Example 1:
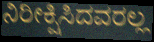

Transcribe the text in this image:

ನಿರೀಕ್ಷಿಸಿದವರಲ್ಲ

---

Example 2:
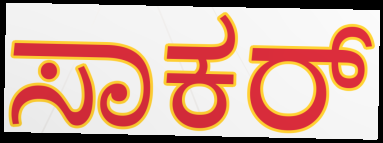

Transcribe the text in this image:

ಸಾಕರ್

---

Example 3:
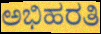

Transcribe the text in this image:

ಅಭಿಹರತಿ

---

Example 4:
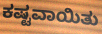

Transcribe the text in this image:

ಕಷ್ಟವಾಯಿತು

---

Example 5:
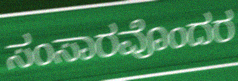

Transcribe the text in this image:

ಸಂಸಾರವೊಂದರ